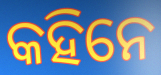
କହିନେ